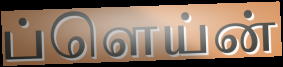
ப்ளெய்ன்